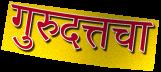
गुरुदत्तचा